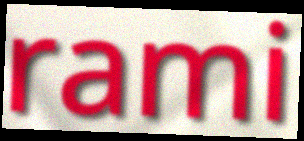
rami